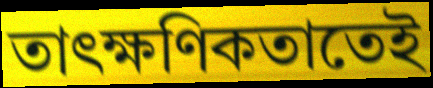
তাৎক্ষণিকতাতেই